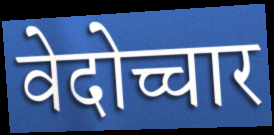
वेदोच्चार